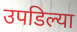
उपडिल्या